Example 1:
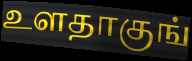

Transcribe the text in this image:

உளதாகுங்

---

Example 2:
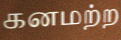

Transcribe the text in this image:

கனமற்ற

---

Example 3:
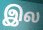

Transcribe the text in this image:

இல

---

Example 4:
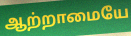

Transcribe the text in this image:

ஆற்றாமையே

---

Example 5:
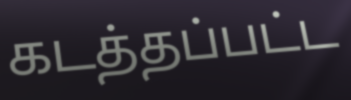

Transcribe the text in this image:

கடத்தப்பட்ட